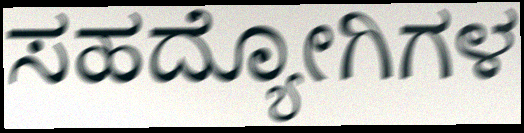
ಸಹದ್ಯೋಗಿಗಳ